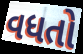
વધતો